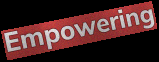
Empowering